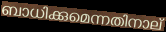
ബാധിക്കുമെന്നതിനാല്